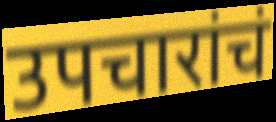
उपचारांचं